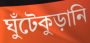
ঘুঁটেকুড়ানি